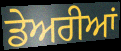
ਡੇਅਰੀਆਂ